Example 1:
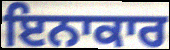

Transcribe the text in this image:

ਇਨਾਕਾਰ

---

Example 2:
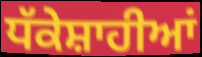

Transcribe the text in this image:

ਧੱਕੇਸ਼ਾਹੀਆਂ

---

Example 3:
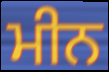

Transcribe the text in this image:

ਮੀਨ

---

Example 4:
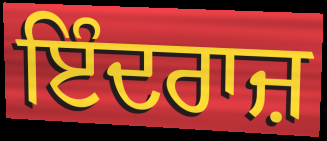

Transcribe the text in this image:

ਇੰਦਰਾਜ਼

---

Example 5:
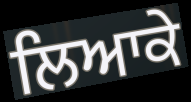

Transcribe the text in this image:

ਲਿਆਕੇ